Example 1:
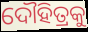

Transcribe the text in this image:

ଦୌହିତ୍ରକୁ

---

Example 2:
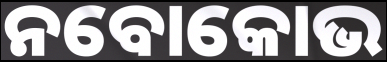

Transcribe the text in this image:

ନବୋକୋଭ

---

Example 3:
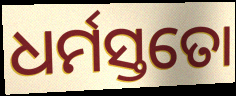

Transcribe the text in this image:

ଧର୍ମସ୍ତତୋ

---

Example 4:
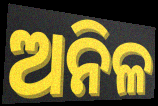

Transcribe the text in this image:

ଅନିଳ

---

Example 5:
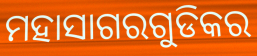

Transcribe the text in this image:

ମହାସାଗରଗୁଡିକର